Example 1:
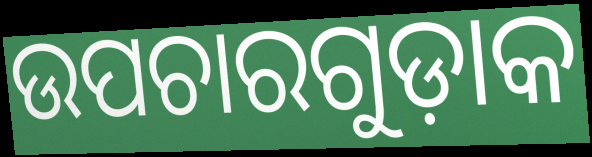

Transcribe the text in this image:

ଉପଚାରଗୁଡ଼ାକ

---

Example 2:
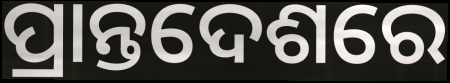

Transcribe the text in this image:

ପ୍ରାନ୍ତଦେଶରେ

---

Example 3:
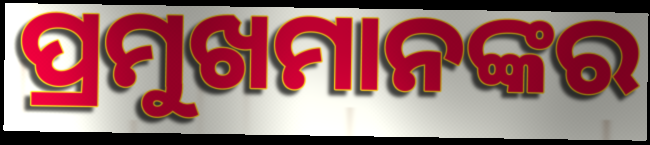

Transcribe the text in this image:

ପ୍ରମୁଖମାନଙ୍କର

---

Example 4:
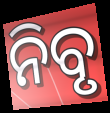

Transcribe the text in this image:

ନିବୃ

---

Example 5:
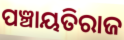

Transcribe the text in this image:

ପଞ୍ଚାୟତିରାଜ